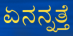
ಏನನ್ನತ್ತೆ